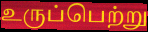
உருப்பெற்று